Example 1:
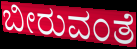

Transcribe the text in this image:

ಬೀರುವಂತೆ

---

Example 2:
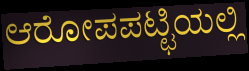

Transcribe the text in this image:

ಆರೋಪಪಟ್ಟಿಯಲ್ಲಿ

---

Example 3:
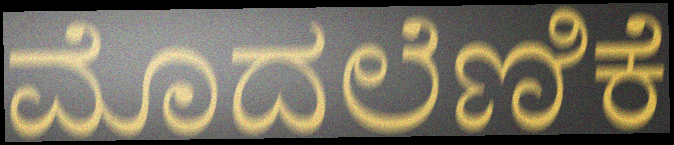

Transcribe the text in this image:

ಮೊದಲೆಣಿಕೆ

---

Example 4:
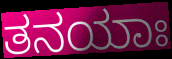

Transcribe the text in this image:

ತನಯಾಃ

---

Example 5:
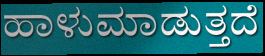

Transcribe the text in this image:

ಹಾಳುಮಾಡುತ್ತದೆ